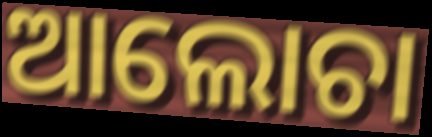
ଆଲୋଚା